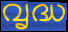
വൃദ്ധ